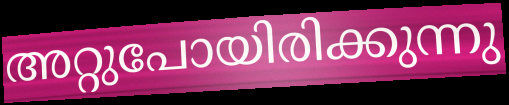
അറ്റുപോയിരിക്കുന്നു